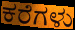
ಕರೆಗಳು